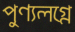
পুণ্যলগ্নে